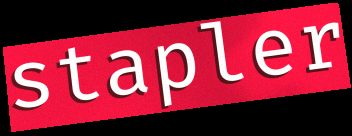
stapler